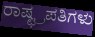
ರಾಷ್ಟ್ರಪತಿಗಳು